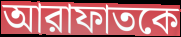
আরাফাতকে